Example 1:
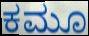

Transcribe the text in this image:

ಕಮೂ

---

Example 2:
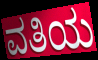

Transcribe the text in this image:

ವತಿಯ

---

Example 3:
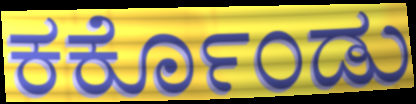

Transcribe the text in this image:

ಕರ್ಕೊಂಡು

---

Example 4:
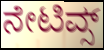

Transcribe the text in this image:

ನೇಟಿವ್ಸ್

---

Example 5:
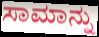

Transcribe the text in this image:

ಸಾಮಾನ್ನು